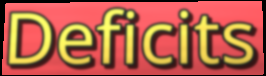
Deficits